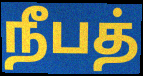
நீபத்